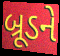
બ્રૂડને